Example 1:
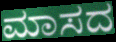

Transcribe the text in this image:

ಮಾಸದ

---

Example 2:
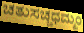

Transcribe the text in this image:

ಚತುಸಚ್ಚಧಮ್ಮಂ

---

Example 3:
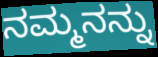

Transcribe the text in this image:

ನಮ್ಮನನ್ನು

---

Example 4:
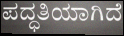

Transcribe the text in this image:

ಪದ್ಧತಿಯಾಗಿದೆ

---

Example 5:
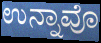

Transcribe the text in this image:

ಉನ್ನಾವೊ